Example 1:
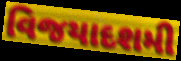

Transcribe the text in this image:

વિજયાદશમી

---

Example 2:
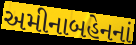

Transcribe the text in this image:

અમીનાબહેનનાં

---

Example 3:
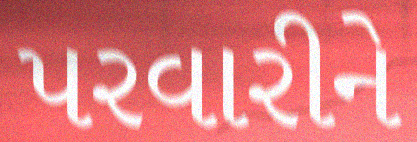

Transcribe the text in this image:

પરવારીને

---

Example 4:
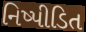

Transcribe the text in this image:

નિષ્પીડિત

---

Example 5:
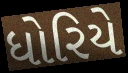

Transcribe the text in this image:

ધોરિયે